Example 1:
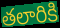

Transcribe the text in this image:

తలారికి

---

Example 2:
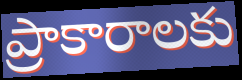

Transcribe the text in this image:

ప్రాకారాలకు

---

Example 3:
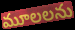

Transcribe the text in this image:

మూలలను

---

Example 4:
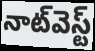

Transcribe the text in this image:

నాట్‌వెస్ట్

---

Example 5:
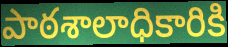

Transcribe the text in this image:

పాఠశాలాధికారికి